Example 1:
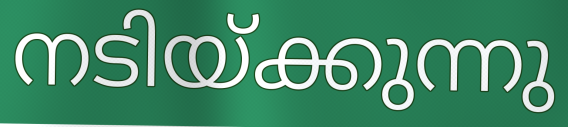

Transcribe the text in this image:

നടിയ്ക്കുന്നു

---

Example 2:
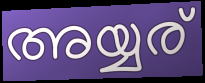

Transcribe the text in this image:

അയ്യര്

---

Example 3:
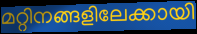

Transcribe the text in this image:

മറ്റിനങ്ങളിലേക്കായി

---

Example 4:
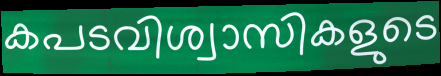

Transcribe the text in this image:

കപടവിശ്വാസികളുടെ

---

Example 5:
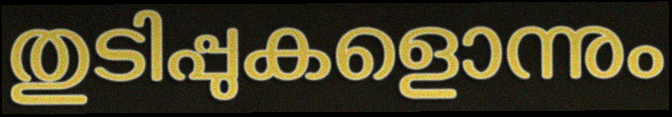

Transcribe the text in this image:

തുടിപ്പുകളൊന്നും